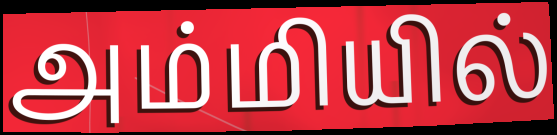
அம்மியில்